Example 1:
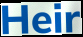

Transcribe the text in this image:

Heir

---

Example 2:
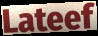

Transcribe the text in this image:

Lateef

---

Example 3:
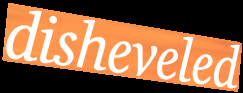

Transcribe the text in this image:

disheveled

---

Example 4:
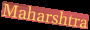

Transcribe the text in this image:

Maharshtra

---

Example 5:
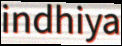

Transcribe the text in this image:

indhiya